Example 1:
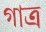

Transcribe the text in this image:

গাত্র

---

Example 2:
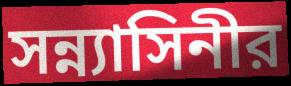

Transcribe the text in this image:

সন্ন্যাসিনীর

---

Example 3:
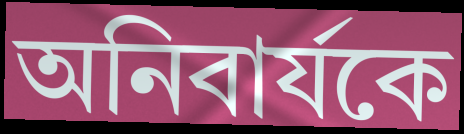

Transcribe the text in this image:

অনিবার্যকে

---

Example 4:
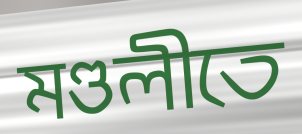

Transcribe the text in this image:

মণ্ডলীতে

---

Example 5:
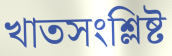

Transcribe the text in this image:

খাতসংশ্লিষ্ট